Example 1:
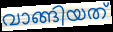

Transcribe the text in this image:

വാങ്ങിയത്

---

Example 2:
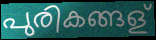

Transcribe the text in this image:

പുരികങ്ങള്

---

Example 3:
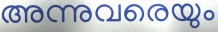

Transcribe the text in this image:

അന്നുവരെയും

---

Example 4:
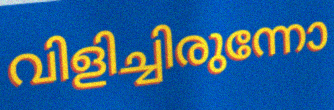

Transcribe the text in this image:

വിളിച്ചിരുന്നോ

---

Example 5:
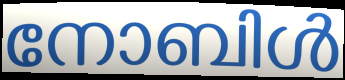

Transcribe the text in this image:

നോബിൾ